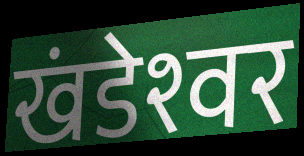
खंडेश्वर